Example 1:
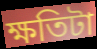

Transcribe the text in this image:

ক্ষতিটা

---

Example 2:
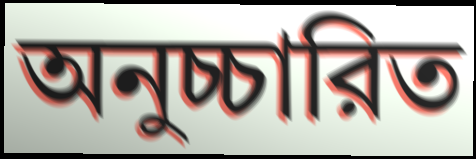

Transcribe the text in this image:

অনুচ্চারিত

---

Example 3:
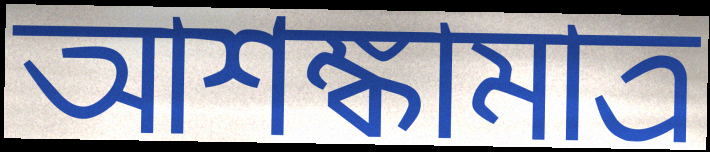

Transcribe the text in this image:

আশঙ্কামাত্র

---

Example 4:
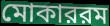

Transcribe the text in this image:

মোকাররম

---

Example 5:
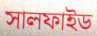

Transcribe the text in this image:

সালফাইড